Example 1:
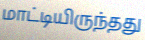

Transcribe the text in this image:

மாட்டியிருந்தது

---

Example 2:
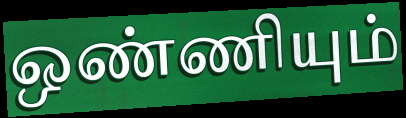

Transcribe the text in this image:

ஒண்ணியும்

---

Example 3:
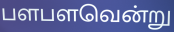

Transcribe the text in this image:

பளபளவென்று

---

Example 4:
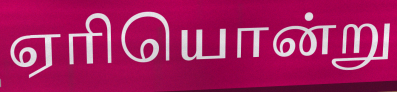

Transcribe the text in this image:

ஏரியொன்று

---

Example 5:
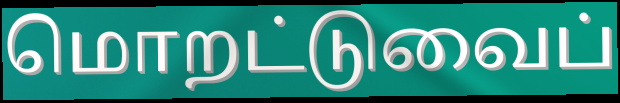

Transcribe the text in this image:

மொறட்டுவைப்